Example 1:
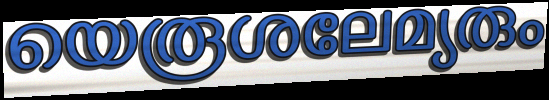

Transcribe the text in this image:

യെരൂശലേമ്യരും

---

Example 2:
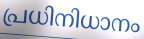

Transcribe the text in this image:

പ്രധിനിധാനം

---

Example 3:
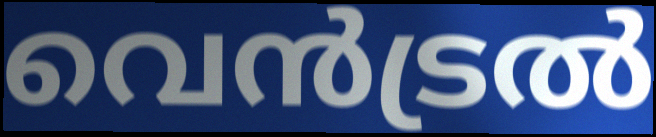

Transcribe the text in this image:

വെൻട്രൽ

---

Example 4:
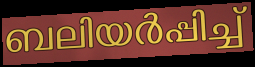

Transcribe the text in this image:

ബലിയർപ്പിച്ച്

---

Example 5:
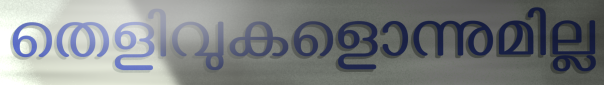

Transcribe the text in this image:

തെളിവുകളൊന്നുമില്ല